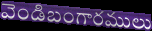
వెండిబంగారములు